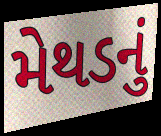
મેથડનું